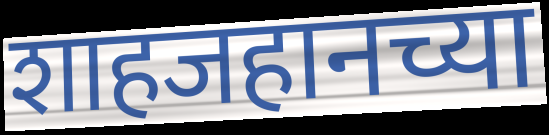
शाहजहानच्या